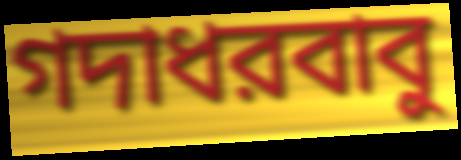
গদাধরবাবু